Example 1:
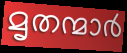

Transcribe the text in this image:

മൃതന്മാർ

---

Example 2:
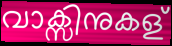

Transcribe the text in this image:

വാക്സിനുകള്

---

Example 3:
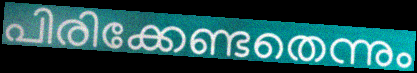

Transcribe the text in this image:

പിരിക്കേണ്ടതെന്നും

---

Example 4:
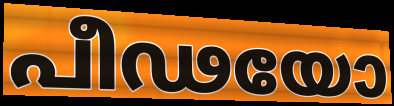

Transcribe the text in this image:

പീഢയോ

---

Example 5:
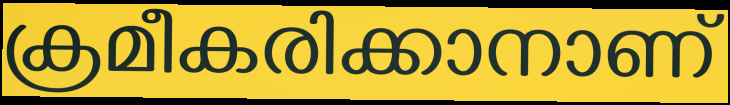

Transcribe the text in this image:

ക്രമീകരിക്കാനാണ്